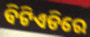
ବିଟିଏଡିରେ